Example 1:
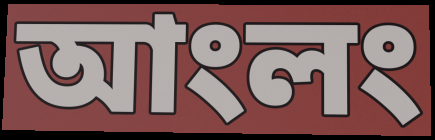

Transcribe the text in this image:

আংলং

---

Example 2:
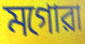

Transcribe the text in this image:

মগোৱা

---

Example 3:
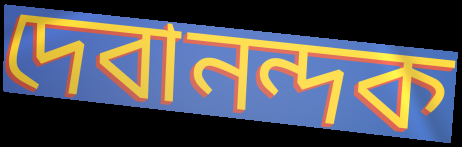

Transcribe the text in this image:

দেবানন্দক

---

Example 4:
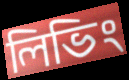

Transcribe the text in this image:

লিভিং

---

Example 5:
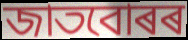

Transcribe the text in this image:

জাতবোৰৰ